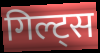
गिल्ट्स